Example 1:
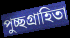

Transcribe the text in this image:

পুচ্ছগ্রাহিতা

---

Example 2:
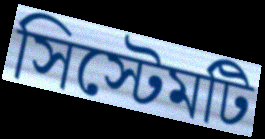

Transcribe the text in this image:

সিস্টেমটি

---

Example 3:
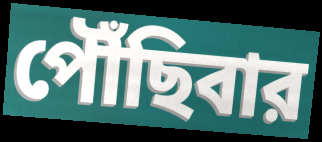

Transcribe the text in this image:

পৌঁছিবার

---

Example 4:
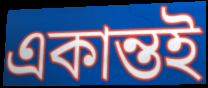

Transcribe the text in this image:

একান্তই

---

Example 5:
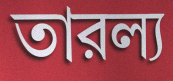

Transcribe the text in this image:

তারল্য